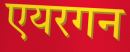
एयरगन